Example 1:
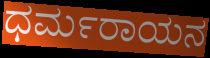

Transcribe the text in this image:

ಧರ್ಮರಾಯನ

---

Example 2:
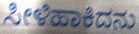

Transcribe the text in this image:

ಸೀಳಿಹಾಕಿದನು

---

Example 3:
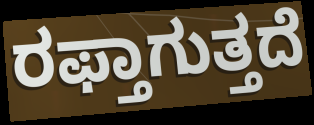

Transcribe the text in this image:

ರಫ್ತಾಗುತ್ತದೆ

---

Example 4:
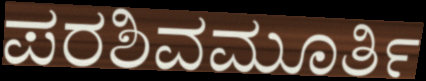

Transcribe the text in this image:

ಪರಶಿವಮೂರ್ತಿ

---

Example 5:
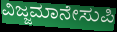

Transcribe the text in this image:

ವಿಜ್ಜಮಾನೇಸುಪಿ